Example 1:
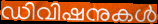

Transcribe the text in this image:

ഡിവിഷനുകൾ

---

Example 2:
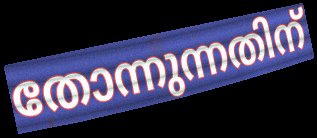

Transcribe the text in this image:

തോന്നുന്നതിന്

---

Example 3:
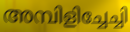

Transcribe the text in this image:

അമ്പിളിച്ചേച്ചി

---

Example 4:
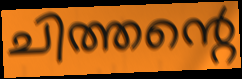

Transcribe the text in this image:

ചിത്തന്റെ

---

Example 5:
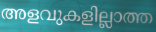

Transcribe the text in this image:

അളവുകളില്ലാത്ത